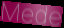
Mede